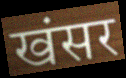
खंसर